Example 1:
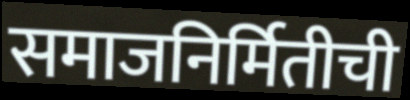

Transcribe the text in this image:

समाजनिर्मितीची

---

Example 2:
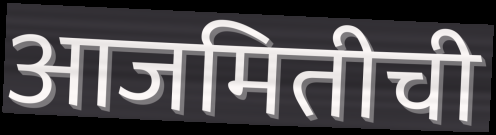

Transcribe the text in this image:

आजमितीची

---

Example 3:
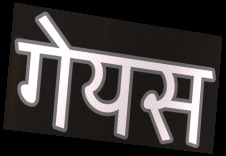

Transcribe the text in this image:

गेयस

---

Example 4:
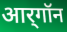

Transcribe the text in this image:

आर्‌गॉन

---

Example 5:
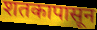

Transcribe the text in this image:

शतकापासून